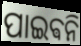
ପାଇଵନି